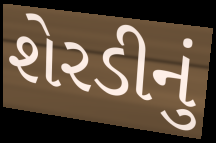
શેરડીનું